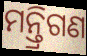
ମନ୍ତ୍ରିଗଣ